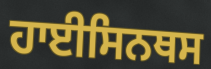
ਹਾਈਸਿਨਥਸ